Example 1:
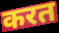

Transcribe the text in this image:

करत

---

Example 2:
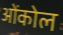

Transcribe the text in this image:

ओंकोल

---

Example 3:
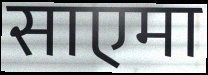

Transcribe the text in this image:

साएमा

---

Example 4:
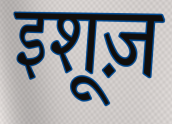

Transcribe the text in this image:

इशूज़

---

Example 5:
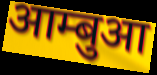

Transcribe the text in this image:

आम्बुआ